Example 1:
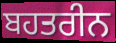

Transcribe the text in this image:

ਬਹਤਰੀਨ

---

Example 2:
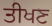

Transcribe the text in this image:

ਤੀਖਣ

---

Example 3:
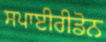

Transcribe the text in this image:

ਸਪਾਈਰੀਡੋਨ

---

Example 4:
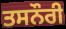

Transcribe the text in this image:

ਤਸਨੌਰੀ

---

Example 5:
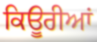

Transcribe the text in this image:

ਕਿਊਰੀਆਂ